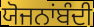
ਯੋਜਨਾਂਬੰਦੀ